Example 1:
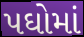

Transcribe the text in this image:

પઘોમાં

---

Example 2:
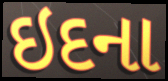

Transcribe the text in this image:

ઇદના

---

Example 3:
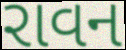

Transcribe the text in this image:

રાવન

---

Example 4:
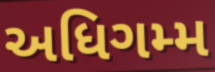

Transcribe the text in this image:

અધિગમ્મ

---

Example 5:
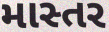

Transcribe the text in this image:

માસ્તર